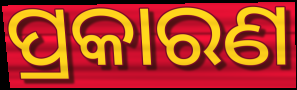
ପ୍ରକାରଣ